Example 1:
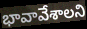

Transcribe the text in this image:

భావావేశాలని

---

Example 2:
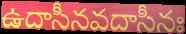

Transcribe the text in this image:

ఉదాసీనవదాసీనః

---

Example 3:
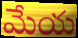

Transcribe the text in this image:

మేయ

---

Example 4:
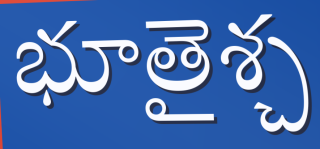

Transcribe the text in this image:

భూతైశ్చ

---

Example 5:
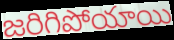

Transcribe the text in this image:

జరిగిపోయాయి